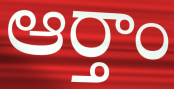
ఆర్తాం